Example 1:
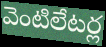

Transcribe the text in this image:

వెంటిలేటర్ల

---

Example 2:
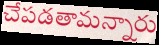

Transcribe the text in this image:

చేపడతామన్నారు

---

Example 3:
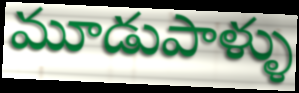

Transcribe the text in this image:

మూడుపాళ్ళు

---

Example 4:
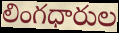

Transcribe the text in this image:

లింగధారుల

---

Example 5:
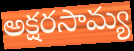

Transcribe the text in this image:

అక్షరసామ్య